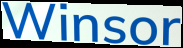
Winsor